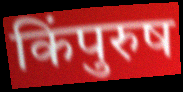
किंपुरुष